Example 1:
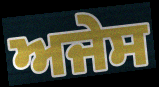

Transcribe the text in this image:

ਅਜੇਸ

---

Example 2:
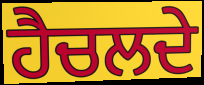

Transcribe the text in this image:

ਹੈਚਲਦੇ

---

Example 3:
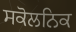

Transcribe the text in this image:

ਸਕੋਲਨਿਕ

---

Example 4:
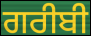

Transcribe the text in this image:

ਗਰੀਬੀ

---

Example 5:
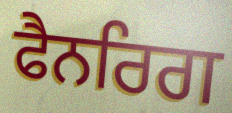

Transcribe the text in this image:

ਫੈਨਰਿਗ